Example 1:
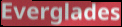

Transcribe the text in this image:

Everglades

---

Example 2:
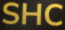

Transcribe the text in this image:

SHC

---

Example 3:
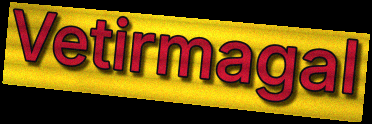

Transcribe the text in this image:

Vetirmagal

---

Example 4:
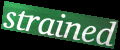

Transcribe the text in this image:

strained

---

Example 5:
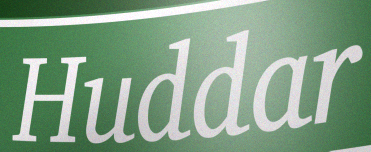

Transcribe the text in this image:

Huddar